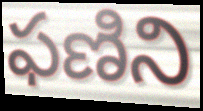
ఫణిని